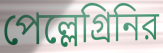
পেল্লেগ্রিনির